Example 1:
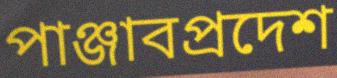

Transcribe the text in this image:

পাঞ্জাবপ্রদেশ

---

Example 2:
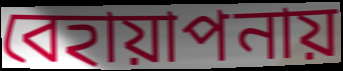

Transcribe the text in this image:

বেহায়াপনায়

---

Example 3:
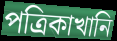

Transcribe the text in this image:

পত্রিকাখানি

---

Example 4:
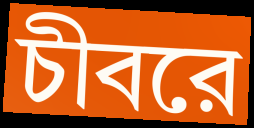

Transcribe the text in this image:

চীবরে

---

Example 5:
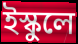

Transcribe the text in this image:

ইস্কুলে